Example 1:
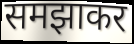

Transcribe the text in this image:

समझाकर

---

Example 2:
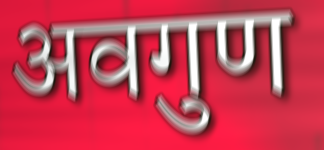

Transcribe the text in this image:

अवगुण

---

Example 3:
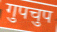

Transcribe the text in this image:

गुपचुप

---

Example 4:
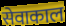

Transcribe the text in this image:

सेवाकाल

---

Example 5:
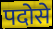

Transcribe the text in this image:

पदोसे